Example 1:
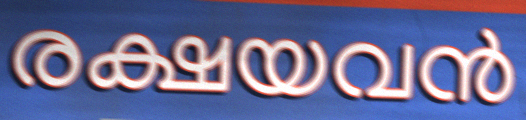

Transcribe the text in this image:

രക്ഷയവൻ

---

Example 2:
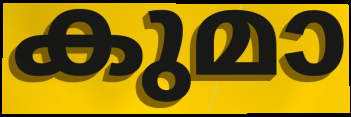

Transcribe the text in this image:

കുമാ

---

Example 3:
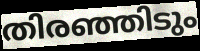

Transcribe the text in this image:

തിരഞ്ഞിടും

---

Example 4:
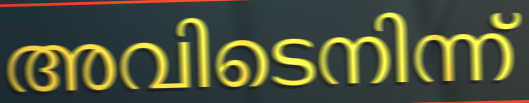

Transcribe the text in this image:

അവിടെനിന്ന്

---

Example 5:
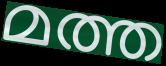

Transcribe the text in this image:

മത്ത